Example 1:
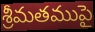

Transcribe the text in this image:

శ్రీమతముపై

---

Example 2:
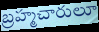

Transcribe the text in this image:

బ్రహ్మచారులూ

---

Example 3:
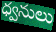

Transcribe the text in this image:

ధ్వనులు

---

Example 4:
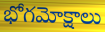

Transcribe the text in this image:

భోగమోక్షాలు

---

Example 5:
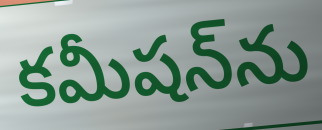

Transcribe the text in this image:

కమీషన్‌ను